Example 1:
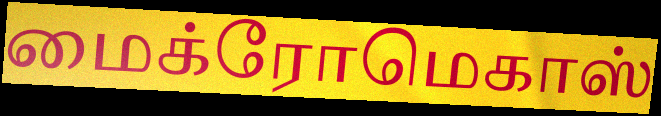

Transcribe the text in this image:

மைக்ரோமெகாஸ்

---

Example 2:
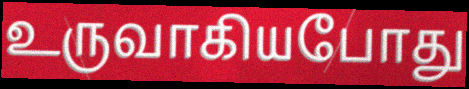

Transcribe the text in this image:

உருவாகியபோது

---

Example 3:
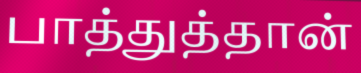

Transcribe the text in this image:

பாத்துத்தான்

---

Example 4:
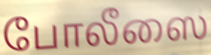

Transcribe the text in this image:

போலீஸை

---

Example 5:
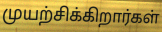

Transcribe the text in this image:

முயற்சிக்கிறார்கள்